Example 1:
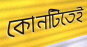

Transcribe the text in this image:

কোনটিতেই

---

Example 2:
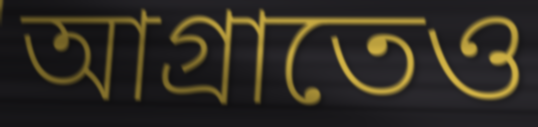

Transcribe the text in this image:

আগ্রাতেও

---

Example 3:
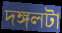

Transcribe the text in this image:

দঙ্গলটা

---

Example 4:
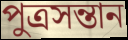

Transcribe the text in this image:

পুত্রসন্তান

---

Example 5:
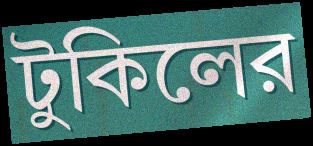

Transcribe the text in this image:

টুকিলের